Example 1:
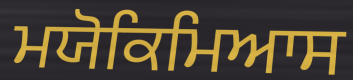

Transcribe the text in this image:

ਮਯੋਕਿਮਿਆਸ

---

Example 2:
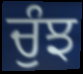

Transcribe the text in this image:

ਚੁੰਝ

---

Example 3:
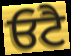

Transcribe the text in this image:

ਓਟੈ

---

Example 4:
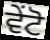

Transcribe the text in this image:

ਵੇਂਟੋ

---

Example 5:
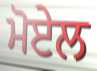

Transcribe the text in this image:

ਮੋਏਲ